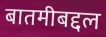
बातमीबद्दल